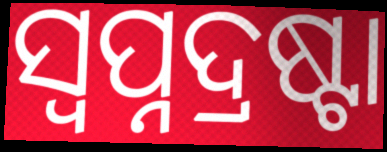
ସ୍ୱପ୍ନଦ୍ରଷ୍ଟା